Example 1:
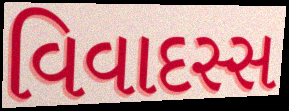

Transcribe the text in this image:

વિવાદસ્સ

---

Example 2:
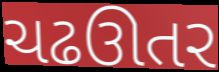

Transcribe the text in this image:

ચઢઊતર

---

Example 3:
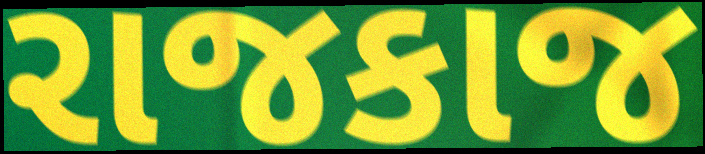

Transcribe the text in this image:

રાજકાજ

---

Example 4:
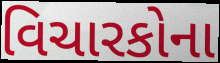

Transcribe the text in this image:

વિચારકોના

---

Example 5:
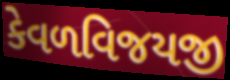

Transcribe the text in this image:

કેવળવિજયજી